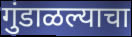
गुंडाळल्याचा